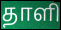
தாளி